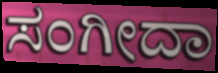
ಸಂಗೀದಾ